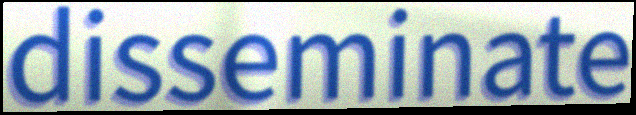
disseminate